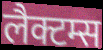
लैक्टम्स